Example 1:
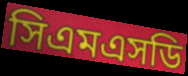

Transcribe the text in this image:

সিএমএসডি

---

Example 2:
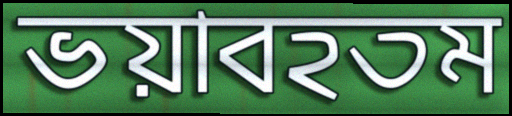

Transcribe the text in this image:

ভয়াবহতম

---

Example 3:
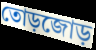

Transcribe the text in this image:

তোড়জোড়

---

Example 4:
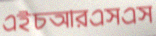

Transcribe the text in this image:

এইচআরএসএস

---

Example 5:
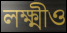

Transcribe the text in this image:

লক্ষ্মীও